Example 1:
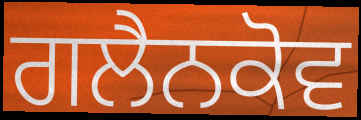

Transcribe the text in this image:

ਗਲੈਨਕੋਵ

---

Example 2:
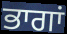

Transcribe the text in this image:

ਭਾਗਾਂ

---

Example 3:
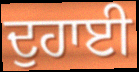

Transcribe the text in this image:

ਦੁਹਾਈ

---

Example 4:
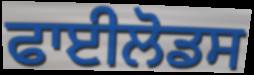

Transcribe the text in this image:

ਫਾਈਲੋਡਸ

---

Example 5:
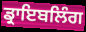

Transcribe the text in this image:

ਡ੍ਰਾਇਬਲਿੰਗ